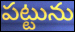
పట్టును